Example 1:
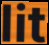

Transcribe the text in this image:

Iit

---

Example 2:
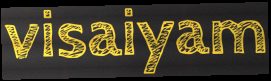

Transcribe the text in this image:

visaiyam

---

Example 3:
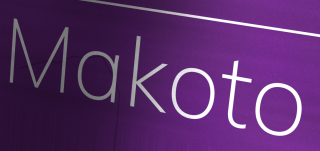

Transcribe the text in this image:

Makoto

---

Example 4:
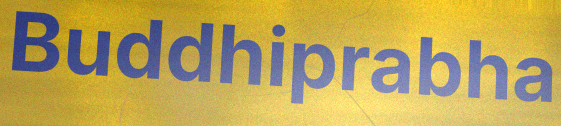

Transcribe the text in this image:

Buddhiprabha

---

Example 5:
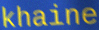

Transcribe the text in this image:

khaine